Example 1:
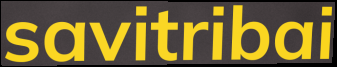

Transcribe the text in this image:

savitribai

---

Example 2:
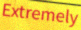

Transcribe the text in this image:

Extremely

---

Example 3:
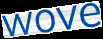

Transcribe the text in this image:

wove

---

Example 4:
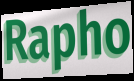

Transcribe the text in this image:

Rapho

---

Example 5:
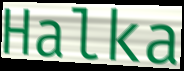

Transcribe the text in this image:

Halka